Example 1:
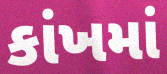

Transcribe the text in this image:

કાંખમાં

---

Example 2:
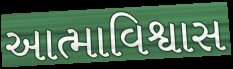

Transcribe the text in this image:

આત્માવિશ્વાસ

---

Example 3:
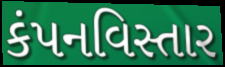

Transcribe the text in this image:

કંપનવિસ્તાર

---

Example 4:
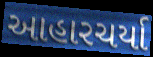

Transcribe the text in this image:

આહારચર્યા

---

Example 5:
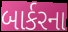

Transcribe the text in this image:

બાર્કરના